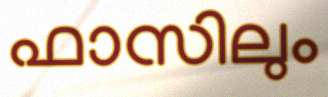
ഫാസിലും